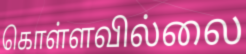
கொள்ளவில்லை